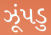
ઝૂંપડુ